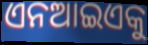
ଏନଆଇଏକୁ